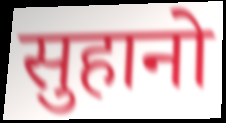
सुहानो